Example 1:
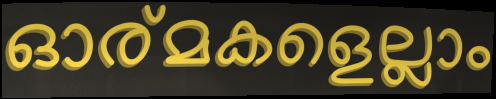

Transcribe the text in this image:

ഓര്മകളെല്ലാം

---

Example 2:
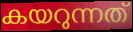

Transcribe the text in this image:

കയറുന്നത്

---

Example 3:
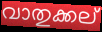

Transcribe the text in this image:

വാതുക്കല്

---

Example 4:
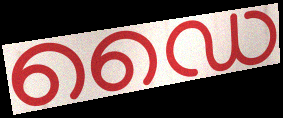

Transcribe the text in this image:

ഡൈ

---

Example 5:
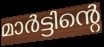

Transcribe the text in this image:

മാർട്ടിന്റെ